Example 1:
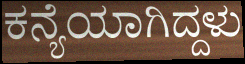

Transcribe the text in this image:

ಕನ್ಯೆಯಾಗಿದ್ದಳು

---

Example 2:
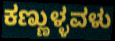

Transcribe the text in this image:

ಕಣ್ಣುಳ್ಳವಳು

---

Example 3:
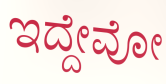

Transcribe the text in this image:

ಇದ್ದೇವೋ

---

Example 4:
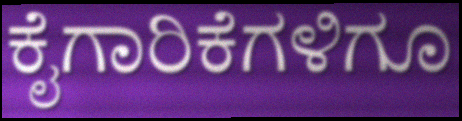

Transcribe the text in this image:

ಕೈಗಾರಿಕೆಗಳಿಗೂ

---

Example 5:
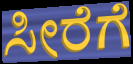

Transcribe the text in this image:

ಸೀರೆಗೆ